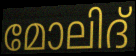
മോലിദ്